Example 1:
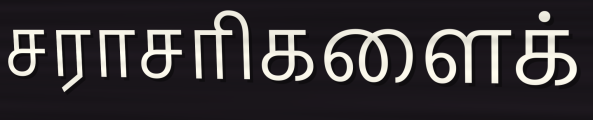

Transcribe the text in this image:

சராசரிகளைக்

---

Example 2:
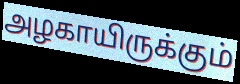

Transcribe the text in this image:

அழகாயிருக்கும்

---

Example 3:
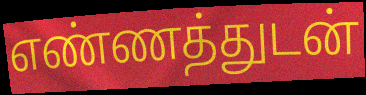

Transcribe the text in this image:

எண்ணத்துடன்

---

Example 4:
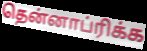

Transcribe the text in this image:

தென்னாப்ரிக்க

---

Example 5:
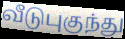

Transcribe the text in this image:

வீடுபுகுந்து